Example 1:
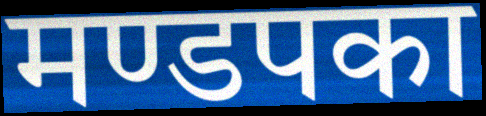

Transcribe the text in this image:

मण्डपका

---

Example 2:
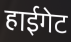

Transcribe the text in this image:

हाईगेट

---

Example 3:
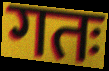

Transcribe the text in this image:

गतः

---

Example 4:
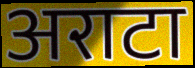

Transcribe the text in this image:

अराटा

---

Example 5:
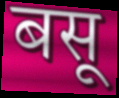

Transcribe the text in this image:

बसू